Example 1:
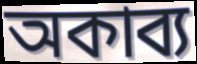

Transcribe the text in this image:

অকাব্য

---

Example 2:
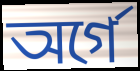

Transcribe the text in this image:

অর্গে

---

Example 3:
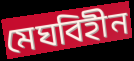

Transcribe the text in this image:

মেঘবিহীন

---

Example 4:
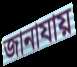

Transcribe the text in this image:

জানাযায়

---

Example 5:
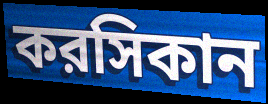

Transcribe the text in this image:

করসিকান